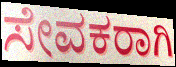
ಸೇವಕರಾಗಿ